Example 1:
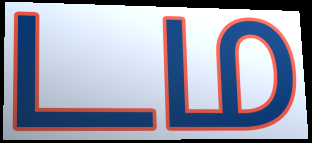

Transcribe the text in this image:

டம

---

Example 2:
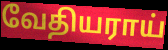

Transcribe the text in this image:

வேதியராய்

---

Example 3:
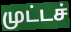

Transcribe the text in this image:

முட்டச்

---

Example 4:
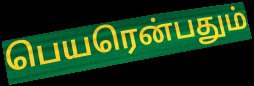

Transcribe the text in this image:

பெயரென்பதும்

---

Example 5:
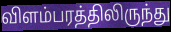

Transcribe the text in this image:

விளம்பரத்திலிருந்து